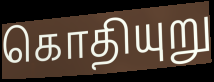
கொதியுறு